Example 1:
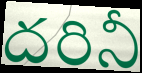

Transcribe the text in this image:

దరినీ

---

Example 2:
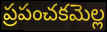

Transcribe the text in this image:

ప్రపంచకమెల్ల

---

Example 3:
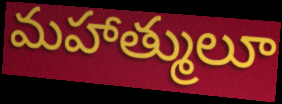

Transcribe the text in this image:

మహాత్ములూ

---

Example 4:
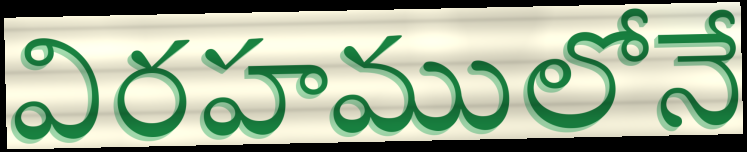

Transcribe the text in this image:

విరహములోనే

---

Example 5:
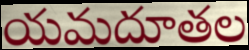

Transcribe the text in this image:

యమదూతల